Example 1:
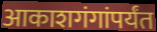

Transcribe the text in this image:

आकाशगंगांपर्यंत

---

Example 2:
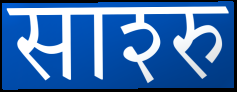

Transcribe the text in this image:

साश्रु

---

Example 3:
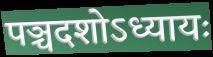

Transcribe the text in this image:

पञ्चदशोऽध्यायः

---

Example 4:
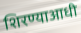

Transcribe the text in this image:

शिरण्याआधी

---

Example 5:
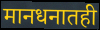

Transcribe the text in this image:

मानधनातही